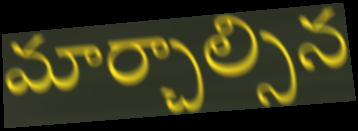
మార్చాల్సిన